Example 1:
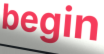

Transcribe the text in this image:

begin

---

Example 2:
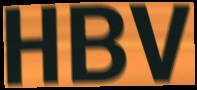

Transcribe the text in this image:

HBV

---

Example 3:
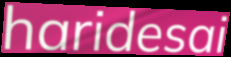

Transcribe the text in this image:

haridesai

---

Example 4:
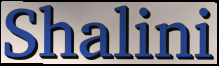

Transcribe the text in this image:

Shalini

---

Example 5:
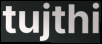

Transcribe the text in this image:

tujthi